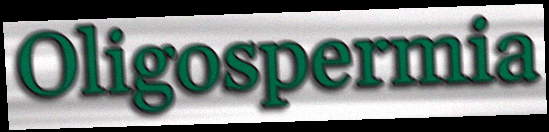
Oligospermia